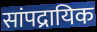
सांपद्रायिक